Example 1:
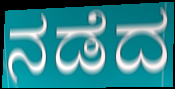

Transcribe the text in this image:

ನಡೆದ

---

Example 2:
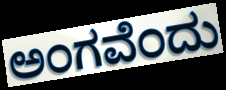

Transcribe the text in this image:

ಅಂಗವೆಂದು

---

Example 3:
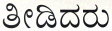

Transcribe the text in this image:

ತೀಡಿದರು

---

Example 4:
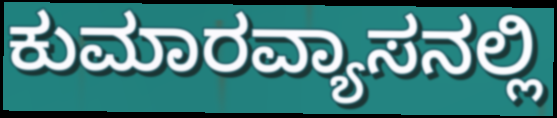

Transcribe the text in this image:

ಕುಮಾರವ್ಯಾಸನಲ್ಲಿ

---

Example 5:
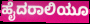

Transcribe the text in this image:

ಹೈದರಾಲಿಯೂ